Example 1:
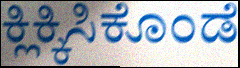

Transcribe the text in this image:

ಕ್ಲಿಕ್ಕಿಸಿಕೊಂಡೆ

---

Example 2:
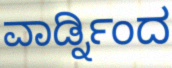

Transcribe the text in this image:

ವಾರ್ಡ್ನಿಂದ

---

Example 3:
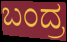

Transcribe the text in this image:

ಬಂದ್ರ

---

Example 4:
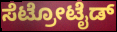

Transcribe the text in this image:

ಸೆಟ್ರೋಟೈಡ್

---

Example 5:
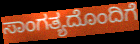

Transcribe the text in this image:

ಸಾಂಗತ್ಯದೊಂದಿಗೆ